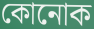
কোনোক